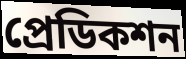
প্রেডিকশন